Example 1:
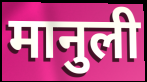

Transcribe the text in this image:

मानुली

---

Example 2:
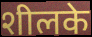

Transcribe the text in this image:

शीलके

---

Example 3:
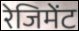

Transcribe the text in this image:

रेजिमेंट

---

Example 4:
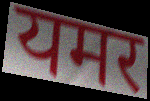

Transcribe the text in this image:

यमर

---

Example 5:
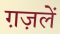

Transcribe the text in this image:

ग़ज़लें